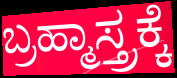
ಬ್ರಹ್ಮಾಸ್ತ್ರಕ್ಕೆ